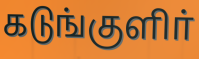
கடுங்குளிர்